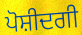
ਪੋਸ਼ੀਦਗੀ